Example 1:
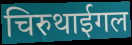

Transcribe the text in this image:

चिरुथाईगल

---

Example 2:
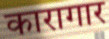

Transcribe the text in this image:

कारागार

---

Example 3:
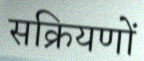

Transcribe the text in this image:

सक्रियणों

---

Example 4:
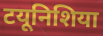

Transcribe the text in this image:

टयूनिशिया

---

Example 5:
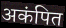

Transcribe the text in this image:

अकंपित